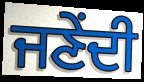
ਜਣੇਂਦੀ